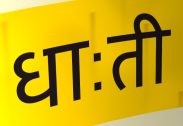
धाःती